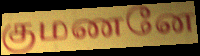
குமணனே